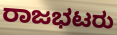
ರಾಜಭಟರು